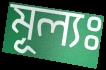
মূল্যঃ